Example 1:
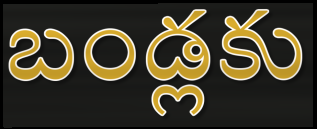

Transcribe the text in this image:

బండ్లకు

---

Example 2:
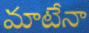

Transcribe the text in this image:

మాటేనా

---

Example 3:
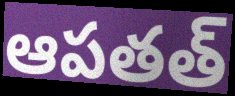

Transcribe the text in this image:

ఆపతత్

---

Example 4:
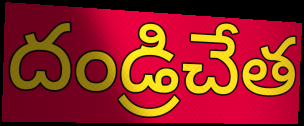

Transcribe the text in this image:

దండ్రిచేత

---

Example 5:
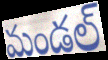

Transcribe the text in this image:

మండల్